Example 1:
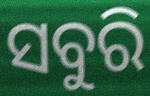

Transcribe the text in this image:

ସବୁରି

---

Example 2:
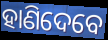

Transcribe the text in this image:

ହାଣିଦେବେ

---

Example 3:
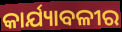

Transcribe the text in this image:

କାର୍ଯ୍ୟାବଳୀର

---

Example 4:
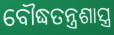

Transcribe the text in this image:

ବୌଦ୍ଧତନ୍ତ୍ରଶାସ୍ତ୍ର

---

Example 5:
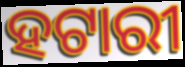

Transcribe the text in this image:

ହଟାରୀ